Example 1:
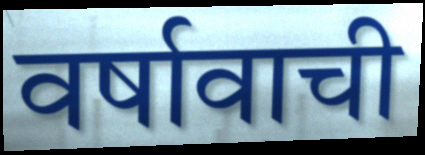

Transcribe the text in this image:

वर्षावाची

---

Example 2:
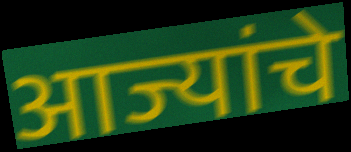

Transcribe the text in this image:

आज्यांचे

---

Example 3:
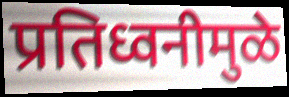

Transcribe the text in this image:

प्रतिध्वनीमुळे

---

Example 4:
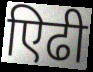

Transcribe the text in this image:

एिढी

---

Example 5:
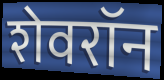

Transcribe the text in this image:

शेवरॉन